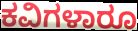
ಕವಿಗಳಾರೂ